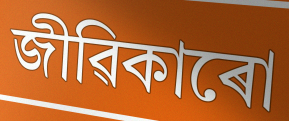
জীৱিকাৰো